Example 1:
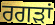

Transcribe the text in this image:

ਰਗੜਾਂ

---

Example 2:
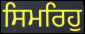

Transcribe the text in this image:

ਸਿਮਰਿਹੁ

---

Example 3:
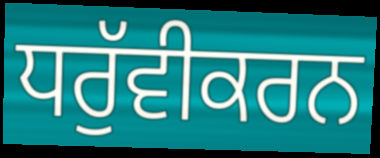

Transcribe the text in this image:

ਧਰੁੱਵੀਕਰਨ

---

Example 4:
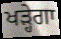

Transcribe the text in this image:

ਖੜ੍ਹੇਗਾ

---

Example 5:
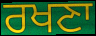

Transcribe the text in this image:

ਰਖਣਾ